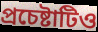
প্রচেষ্টাটিও